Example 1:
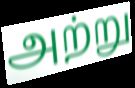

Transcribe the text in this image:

அற்று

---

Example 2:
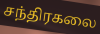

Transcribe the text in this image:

சந்திரகலை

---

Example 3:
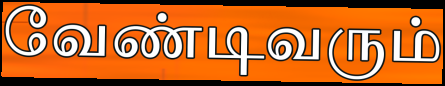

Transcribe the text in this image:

வேண்டிவரும்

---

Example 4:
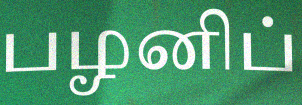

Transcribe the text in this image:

பழனிப்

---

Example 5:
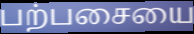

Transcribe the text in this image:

பற்பசையை